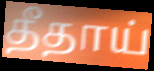
தீதாய்